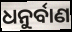
ଧନୁର୍ବାଣ